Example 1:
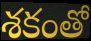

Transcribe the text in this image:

శకంతో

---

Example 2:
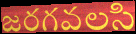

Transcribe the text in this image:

జరగవలసి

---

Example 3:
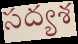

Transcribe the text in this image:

సద్యశ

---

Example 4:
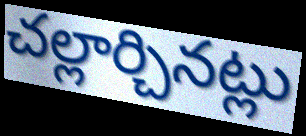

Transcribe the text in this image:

చల్లార్చినట్లు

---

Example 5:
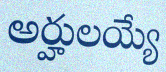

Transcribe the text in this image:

అర్హులయ్యే